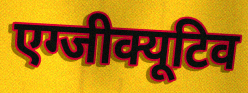
एग्जीक्यूटिव